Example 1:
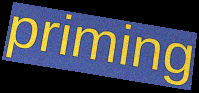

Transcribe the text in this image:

priming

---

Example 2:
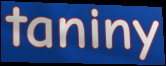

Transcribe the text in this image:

taniny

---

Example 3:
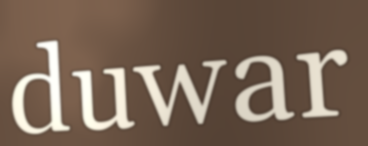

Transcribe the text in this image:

duwar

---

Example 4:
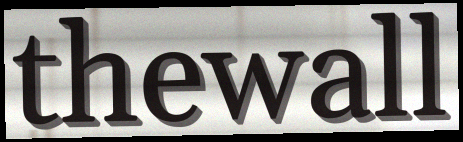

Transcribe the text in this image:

thewall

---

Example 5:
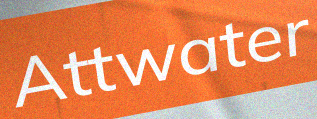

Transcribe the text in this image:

Attwater